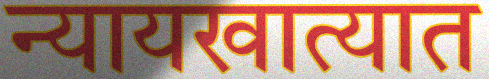
न्यायखात्यात